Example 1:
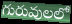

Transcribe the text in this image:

గురువులలో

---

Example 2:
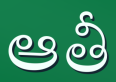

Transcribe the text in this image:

ఆతీ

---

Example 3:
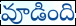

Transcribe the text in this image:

వూడింది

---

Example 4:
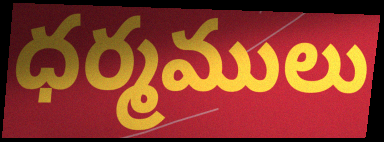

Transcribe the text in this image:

ధర్మములు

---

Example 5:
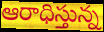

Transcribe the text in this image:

ఆరాధిస్తున్న